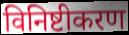
विनिष्टीकरण